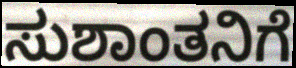
ಸುಶಾಂತನಿಗೆ